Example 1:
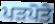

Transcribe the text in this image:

ਪੜਪੋਤੇ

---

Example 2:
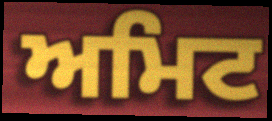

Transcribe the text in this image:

ਅਮਿਟ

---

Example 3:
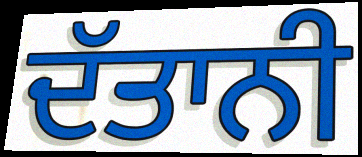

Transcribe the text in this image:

ਦੱਤਾਨੀ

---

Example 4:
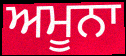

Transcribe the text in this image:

ਅਮੂਨਾ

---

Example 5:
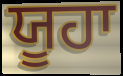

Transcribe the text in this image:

ਯੂਹਾ